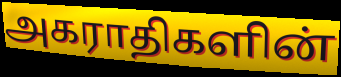
அகராதிகளின்